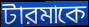
টারমাকে